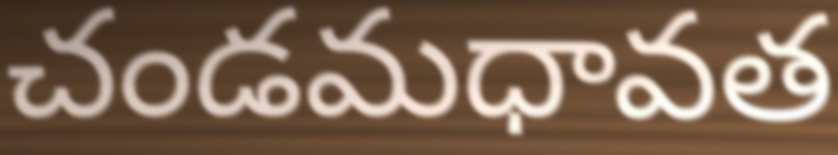
చండమధావత